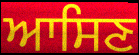
ਆਸਿਣ